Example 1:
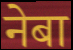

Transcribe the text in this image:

नेबा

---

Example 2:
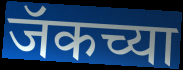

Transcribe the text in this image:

जॅकच्या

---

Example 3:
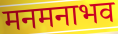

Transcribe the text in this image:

मनमनाभव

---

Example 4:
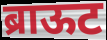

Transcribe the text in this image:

ब्राऊट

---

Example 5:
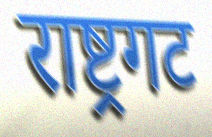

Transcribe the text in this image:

राष्ट्रगट